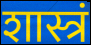
शास्त्रं